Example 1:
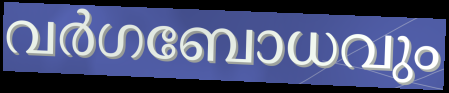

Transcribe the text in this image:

വർഗബോധവും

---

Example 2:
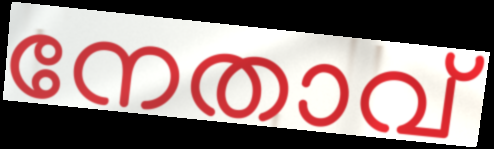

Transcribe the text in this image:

നേതാവ്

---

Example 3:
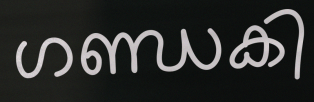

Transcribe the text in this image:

ഗണ്ഡകി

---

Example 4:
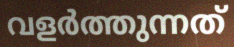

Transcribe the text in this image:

വളർത്തുന്നത്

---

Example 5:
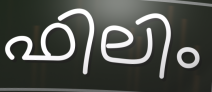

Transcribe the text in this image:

ഫിലിം